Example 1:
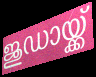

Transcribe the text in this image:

ജുഡായ്ക്ക്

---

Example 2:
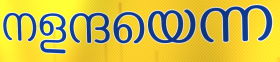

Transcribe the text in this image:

നളന്ദയെന്ന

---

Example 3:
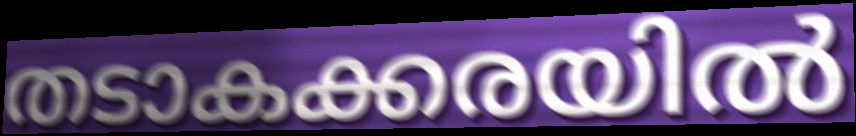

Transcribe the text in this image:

തടാകക്കരയിൽ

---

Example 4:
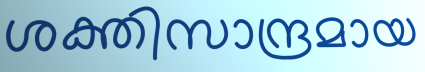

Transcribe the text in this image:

ശക്തിസാന്ദ്രമായ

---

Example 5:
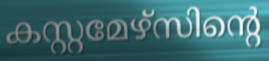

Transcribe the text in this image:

കസ്റ്റമേഴ്സിന്റെ